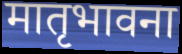
मातृभावना